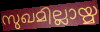
സുഖമില്ലായ്മ